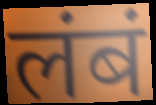
लंबं